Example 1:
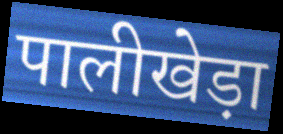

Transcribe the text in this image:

पालीखेड़ा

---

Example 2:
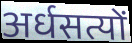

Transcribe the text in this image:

अर्धसत्यों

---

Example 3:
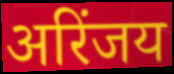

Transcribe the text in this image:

अरिंजय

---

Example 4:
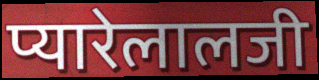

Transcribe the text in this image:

प्यारेलालजी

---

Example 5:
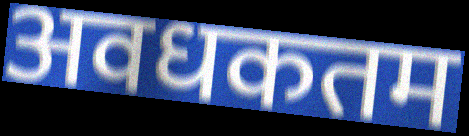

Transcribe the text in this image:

अवधकतम